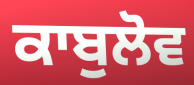
ਕਾਬੁਲੋਵ